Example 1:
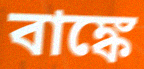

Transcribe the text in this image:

বাঙ্কে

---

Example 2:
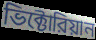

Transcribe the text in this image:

ভিক্টোরিয়ান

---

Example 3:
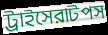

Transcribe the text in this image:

ট্রাইসেরাটপস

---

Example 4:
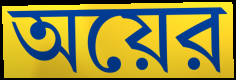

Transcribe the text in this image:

অয়ের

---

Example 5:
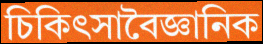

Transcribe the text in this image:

চিকিৎসাবৈজ্ঞানিক